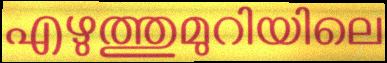
എഴുത്തുമുറിയിലെ